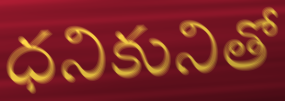
ధనికునితో